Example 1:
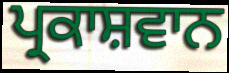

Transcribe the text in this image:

ਪ੍ਰਕਾਸ਼ਵਾਨ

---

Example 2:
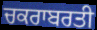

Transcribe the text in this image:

ਚਕਰਾਬਰਤੀ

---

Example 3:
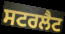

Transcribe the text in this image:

ਸਟਰਲੈਟ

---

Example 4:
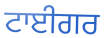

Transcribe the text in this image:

ਟਾਈਗਰ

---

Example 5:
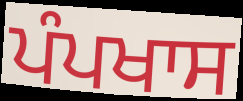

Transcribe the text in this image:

ਪੰਪਖਾਸ